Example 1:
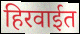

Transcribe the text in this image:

हिरवाईत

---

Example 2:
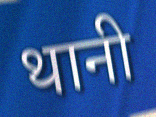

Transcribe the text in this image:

थानी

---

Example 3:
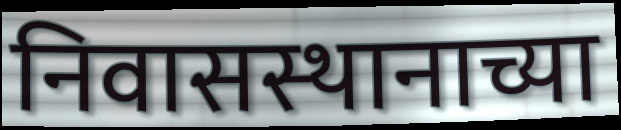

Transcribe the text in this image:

निवासस्थानाच्या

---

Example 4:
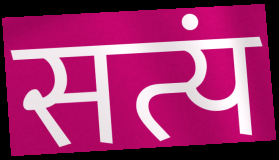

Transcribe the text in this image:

सत्यं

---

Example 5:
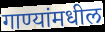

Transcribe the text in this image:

गाण्यांमधील